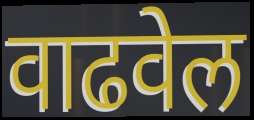
वाढवेल